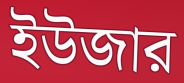
ইউজার